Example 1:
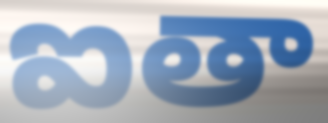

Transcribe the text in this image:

ఐతా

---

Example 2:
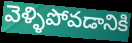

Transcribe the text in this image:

వెళ్ళిపోవడానికి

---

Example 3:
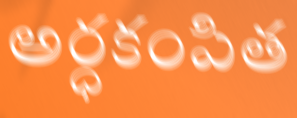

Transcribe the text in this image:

అర్ధకంపిత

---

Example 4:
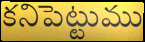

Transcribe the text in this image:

కనిపెట్టుము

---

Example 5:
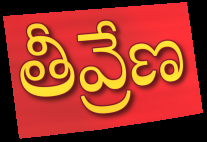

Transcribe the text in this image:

తీవ్రేణ